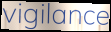
vigilance